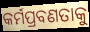
କର୍ମପ୍ରବଣତାକୁ